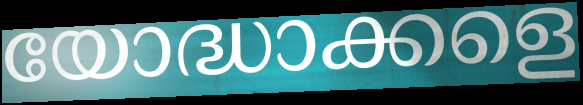
യോദ്ധാക്കളെ